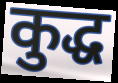
कुद्ध